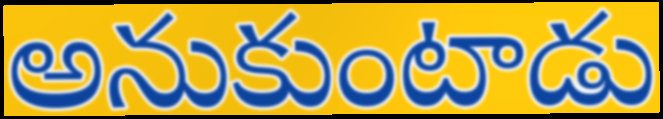
అనుకుంటాడు